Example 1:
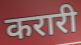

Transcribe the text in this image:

करारी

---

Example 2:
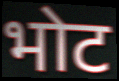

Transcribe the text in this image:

भोट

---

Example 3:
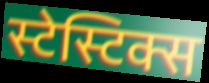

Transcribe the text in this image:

स्टेस्टिक्स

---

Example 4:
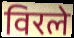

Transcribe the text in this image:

विरले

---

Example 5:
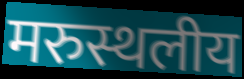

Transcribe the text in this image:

मरुस्थलीय